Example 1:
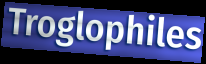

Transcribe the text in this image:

Troglophiles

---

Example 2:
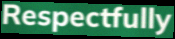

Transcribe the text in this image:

Respectfully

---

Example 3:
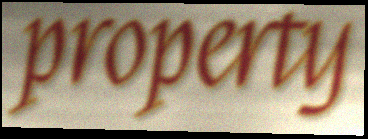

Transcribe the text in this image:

property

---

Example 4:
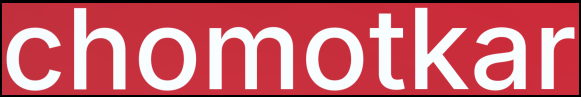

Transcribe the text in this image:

chomotkar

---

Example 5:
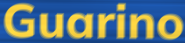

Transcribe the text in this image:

Guarino